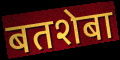
बतशेबा